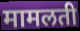
मामलती